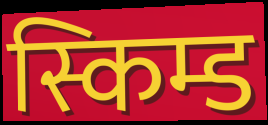
स्किम्ड